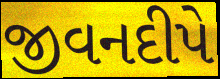
જીવનદીપે